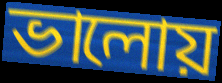
ভালোয়